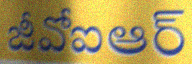
జీవోఐఆర్